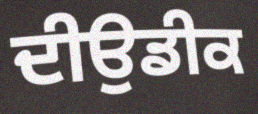
ਦੀਉਡੀਕ